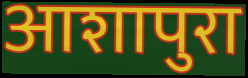
आशापुरा